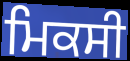
ਮਿਕਸੀ